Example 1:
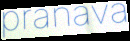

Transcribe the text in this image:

pranava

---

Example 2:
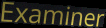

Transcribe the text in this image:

Examiner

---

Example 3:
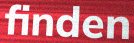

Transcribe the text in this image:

finden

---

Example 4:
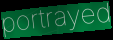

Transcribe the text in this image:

portrayed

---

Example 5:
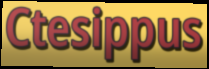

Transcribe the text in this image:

Ctesippus